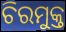
ଚିରମୁକ୍ତ